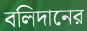
বলিদানের